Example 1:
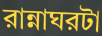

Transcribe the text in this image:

রান্নাঘরটা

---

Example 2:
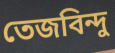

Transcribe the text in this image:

তেজবিন্দু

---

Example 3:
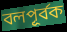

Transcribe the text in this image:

বলপূর্বক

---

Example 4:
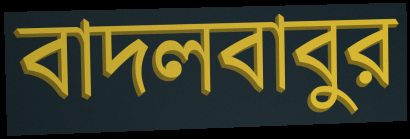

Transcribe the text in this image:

বাদলবাবুর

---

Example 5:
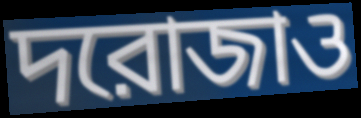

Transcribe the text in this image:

দরোজাও